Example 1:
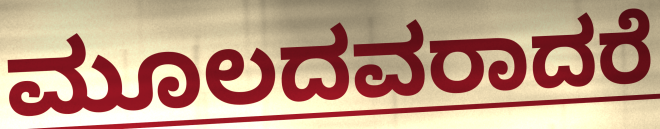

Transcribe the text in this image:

ಮೂಲದವರಾದರೆ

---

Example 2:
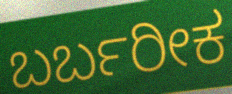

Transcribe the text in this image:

ಬರ್ಬರೀಕ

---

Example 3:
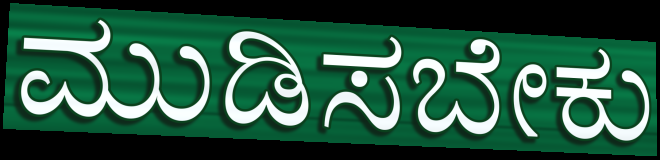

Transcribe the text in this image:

ಮುಡಿಸಬೇಕು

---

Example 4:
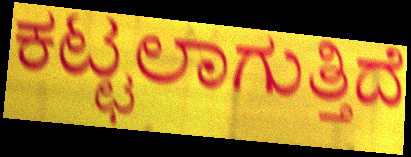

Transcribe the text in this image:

ಕಟ್ಟಲಾಗುತ್ತಿದೆ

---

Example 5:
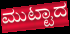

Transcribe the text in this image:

ಮುಟ್ಟಾದ